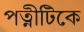
পত্নীটিকে